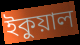
ইকুয়াল